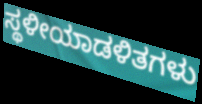
ಸ್ಥಳೀಯಾಡಳಿತಗಳು